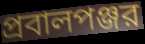
প্রবালপঞ্জর